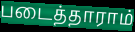
படைத்தாராம்